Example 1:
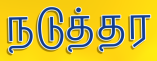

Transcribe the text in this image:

நடுத்தர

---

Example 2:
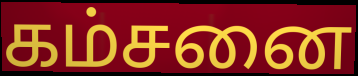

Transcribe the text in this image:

கம்சனை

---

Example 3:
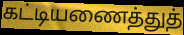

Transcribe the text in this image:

கட்டியணைத்துத்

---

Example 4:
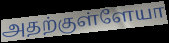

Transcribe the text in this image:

அதற்குள்ளேயா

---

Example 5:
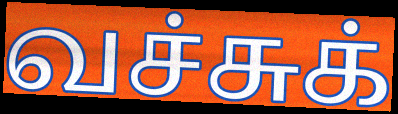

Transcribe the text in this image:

வச்சுக்